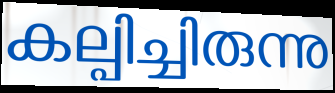
കല്പിച്ചിരുന്നു